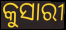
କୁସାରୀ